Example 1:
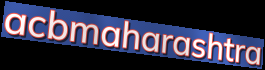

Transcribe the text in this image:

acbmaharashtra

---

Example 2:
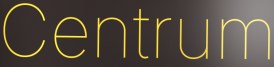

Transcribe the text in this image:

Centrum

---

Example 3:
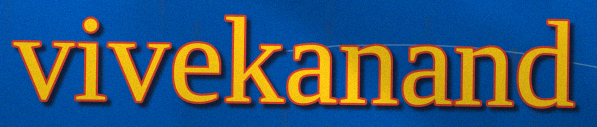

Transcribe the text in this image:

vivekanand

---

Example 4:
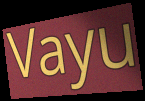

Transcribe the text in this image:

Vayu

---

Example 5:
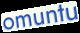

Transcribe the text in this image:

omuntu